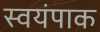
स्वयंपाक